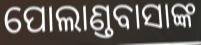
ପୋଲାଣ୍ଡବାସାଙ୍କ